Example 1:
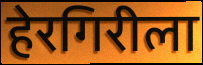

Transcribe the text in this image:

हेरगिरीला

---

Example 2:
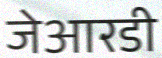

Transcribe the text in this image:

जेआरडी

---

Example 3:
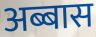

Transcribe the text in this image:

अब्बास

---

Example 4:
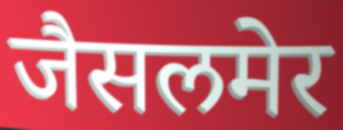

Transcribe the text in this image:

जैसलमेर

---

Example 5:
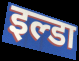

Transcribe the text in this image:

इल्डा